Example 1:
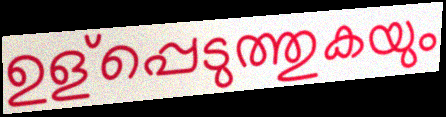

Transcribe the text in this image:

ഉള്പ്പെടുത്തുകയും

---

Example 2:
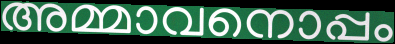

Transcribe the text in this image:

അമ്മാവനൊപ്പം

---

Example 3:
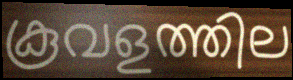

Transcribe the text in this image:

കൂവളത്തില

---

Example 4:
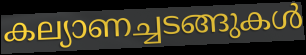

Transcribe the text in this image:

കല്യാണച്ചടങ്ങുകൾ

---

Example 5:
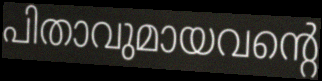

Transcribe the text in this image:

പിതാവുമായവന്റെ